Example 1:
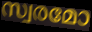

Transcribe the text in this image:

സ്വരമോ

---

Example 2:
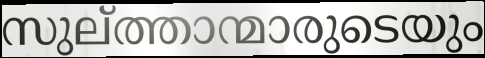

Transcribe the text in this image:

സുല്ത്താന്മാരുടെയും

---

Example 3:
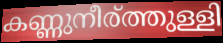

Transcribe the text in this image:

കണ്ണുനീര്ത്തുള്ളി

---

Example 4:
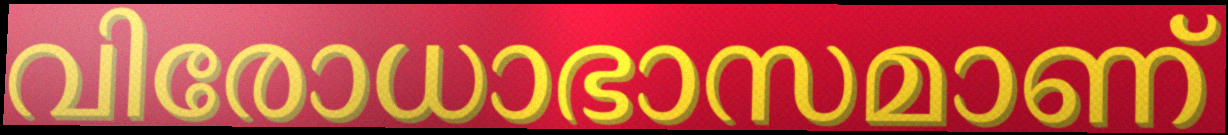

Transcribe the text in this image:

വിരോധാഭാസമാണ്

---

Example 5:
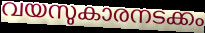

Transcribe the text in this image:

വയസുകാരനടക്കം